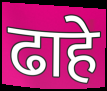
ढाहे